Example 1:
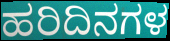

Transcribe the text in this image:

ಹರಿದಿನಗಳ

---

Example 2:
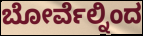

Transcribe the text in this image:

ಬೋರ್ವೆಲ್ನಿಂದ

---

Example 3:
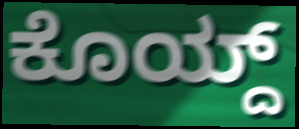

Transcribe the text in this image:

ಕೊಯ್ದ್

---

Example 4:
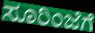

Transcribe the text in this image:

ಸೂರಿಂಜೆಗೆ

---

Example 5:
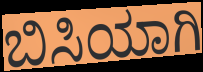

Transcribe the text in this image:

ಬಿಸಿಯಾಗಿ